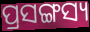
ପ୍ରସଙ୍ଗସ୍ୟ